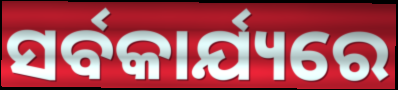
ସର୍ବକାର୍ଯ୍ୟରେ